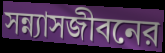
সন্ন্যাসজীবনের